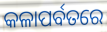
କଳାପର୍ବତରେ